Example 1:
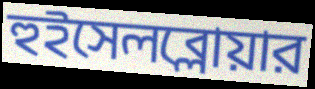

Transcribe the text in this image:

হুইসেলব্লোয়ার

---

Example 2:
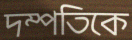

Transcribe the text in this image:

দম্পতিকে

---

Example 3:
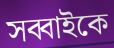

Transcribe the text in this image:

সব্বাইকে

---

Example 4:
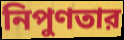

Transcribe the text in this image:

নিপুণতার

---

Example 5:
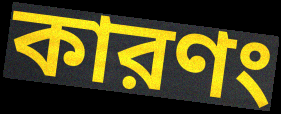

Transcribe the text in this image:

কারণং